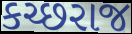
કચ્છરાજ